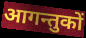
आगन्तुकों